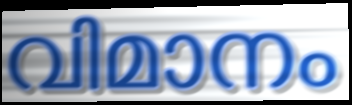
വിമാനം